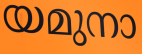
യമുനാ